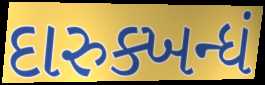
દારુક્ખન્ધં